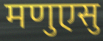
मणुएसु